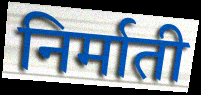
निर्माती